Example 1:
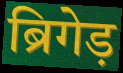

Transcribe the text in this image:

ब्रिगेड़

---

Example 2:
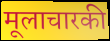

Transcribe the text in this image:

मूलाचारकी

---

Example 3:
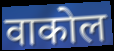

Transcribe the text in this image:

वाकोल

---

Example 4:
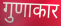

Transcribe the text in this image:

गुणाकार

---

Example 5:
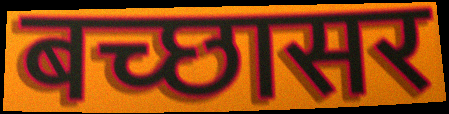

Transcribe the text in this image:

बच्छासर